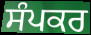
ਸੰਪਕਰ